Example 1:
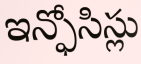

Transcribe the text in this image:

ఇన్ఫోసిస్లు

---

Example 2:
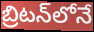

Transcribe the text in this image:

బ్రిటన్‌లోనే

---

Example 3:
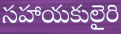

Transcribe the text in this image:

సహాయకులైరి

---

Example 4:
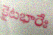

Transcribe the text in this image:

కైటభారేః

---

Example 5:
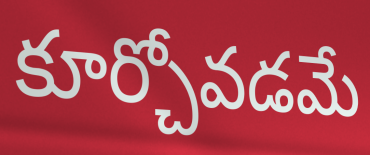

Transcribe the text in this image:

కూర్చోవడమే